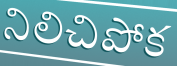
నిలిచిపోక